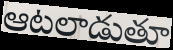
ఆటలాడుతూ